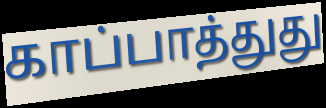
காப்பாத்துது